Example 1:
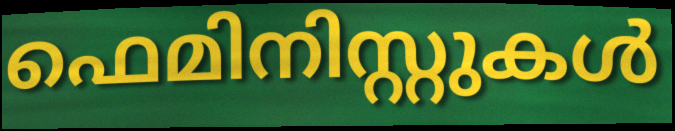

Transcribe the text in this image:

ഫെമിനിസ്റ്റുകൾ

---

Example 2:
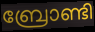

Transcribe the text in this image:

ബ്രോണ്ടി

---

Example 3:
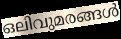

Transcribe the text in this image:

ഒലിവുമരങ്ങൾ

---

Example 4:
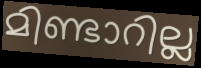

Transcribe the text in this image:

മിണ്ടാറില്ല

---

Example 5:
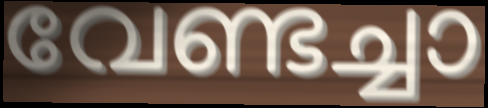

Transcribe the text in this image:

വേണ്ടച്ചാ